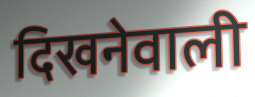
दिखनेवाली